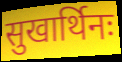
सुखार्थिनः